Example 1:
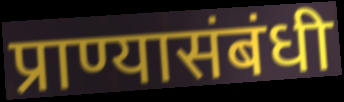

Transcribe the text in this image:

प्राण्यासंबंधी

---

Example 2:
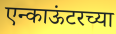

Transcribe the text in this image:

एन्काऊंटरच्या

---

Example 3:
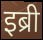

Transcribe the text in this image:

इब्री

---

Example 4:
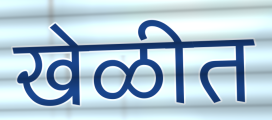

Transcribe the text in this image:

खेळीत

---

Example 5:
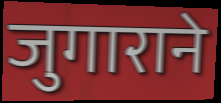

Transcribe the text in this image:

जुगाराने